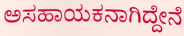
ಅಸಹಾಯಕನಾಗಿದ್ದೇನೆ